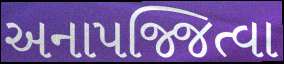
અનાપજ્જિત્વા